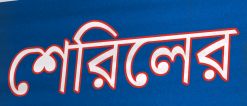
শেরিলের